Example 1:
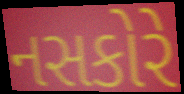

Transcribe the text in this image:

નસકોરે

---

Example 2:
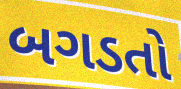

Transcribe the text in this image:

બગડતો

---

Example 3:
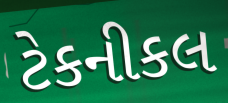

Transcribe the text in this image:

ટેકનીકલ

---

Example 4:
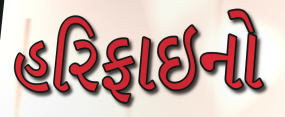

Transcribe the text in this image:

હરિફાઇનો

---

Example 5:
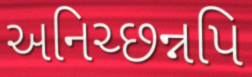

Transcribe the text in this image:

અનિચ્છન્નપિ